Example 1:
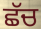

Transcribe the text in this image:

ਛੱਚ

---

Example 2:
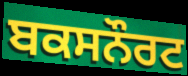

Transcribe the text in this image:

ਬਕਸਨੌਰਟ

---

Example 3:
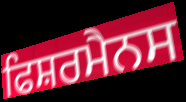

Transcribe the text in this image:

ਫਿਸ਼ਰਮੈਨਸ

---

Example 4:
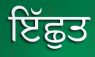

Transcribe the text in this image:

ਇੱਛੁਤ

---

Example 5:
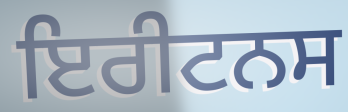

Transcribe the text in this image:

ਇਰੀਟਨਸ